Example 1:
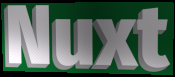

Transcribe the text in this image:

Nuxt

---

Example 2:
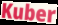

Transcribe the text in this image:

Kuber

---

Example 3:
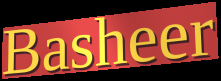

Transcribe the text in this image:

Basheer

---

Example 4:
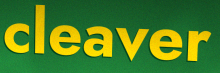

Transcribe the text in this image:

cleaver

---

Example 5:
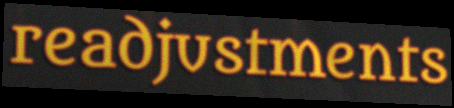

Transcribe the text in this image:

readjustments